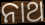
ନାଥ